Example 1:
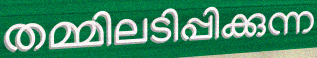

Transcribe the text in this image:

തമ്മിലടിപ്പിക്കുന്ന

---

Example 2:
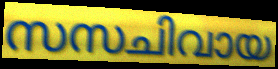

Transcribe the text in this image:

സസചിവായ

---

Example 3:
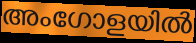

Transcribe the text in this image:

അംഗോളയിൽ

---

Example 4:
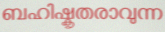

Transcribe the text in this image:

ബഹിഷ്കൃതരാവുന്ന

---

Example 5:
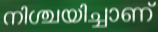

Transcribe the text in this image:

നിശ്ചയിച്ചാണ്